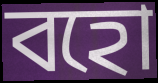
বহো